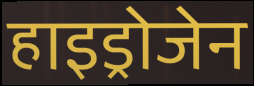
हाइड्रोजेन